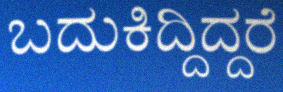
ಬದುಕಿದ್ದಿದ್ದರೆ